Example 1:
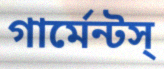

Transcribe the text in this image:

গার্মেন্টস্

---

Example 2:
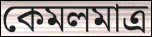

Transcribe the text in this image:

কেমলমাত্র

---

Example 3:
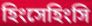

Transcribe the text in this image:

হিংসেহিংসি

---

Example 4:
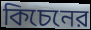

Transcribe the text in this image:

কিচেনের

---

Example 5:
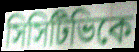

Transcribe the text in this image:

সিসিটিভিকে